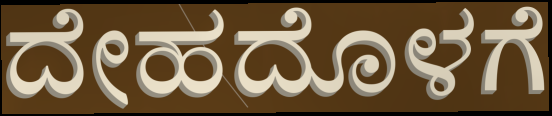
ದೇಹದೊಳಗೆ